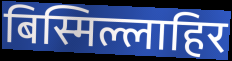
बिस्मिल्लाहिर